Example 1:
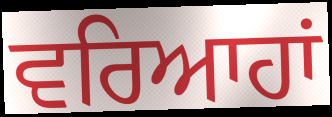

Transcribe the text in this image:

ਵਰਿਆਹਾਂ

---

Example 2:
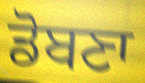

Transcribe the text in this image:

ਡੋਬਣਾ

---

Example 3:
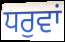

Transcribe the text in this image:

ਧਰੁਵਾਂ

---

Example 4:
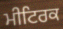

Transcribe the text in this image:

ਮੀਟਿਰਕ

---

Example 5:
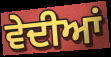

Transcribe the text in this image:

ਵੇਦੀਆਂ